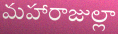
మహారాజుల్లా